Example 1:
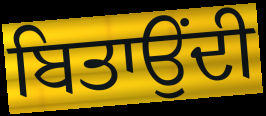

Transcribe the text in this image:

ਬਿਤਾਉਂਦੀ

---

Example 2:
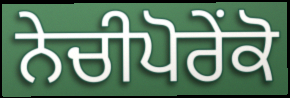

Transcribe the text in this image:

ਨੇਚੀਪੋਰੇਂਕੋ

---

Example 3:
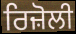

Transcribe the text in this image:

ਰਿਜ਼ੋਲੀ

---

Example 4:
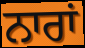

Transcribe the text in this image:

ਨਾਰਾਂ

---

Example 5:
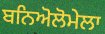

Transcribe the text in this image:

ਬਨਿਅੋਲੋਮੇਲਾ